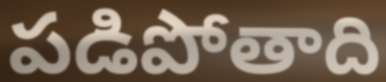
పడిపోతాది